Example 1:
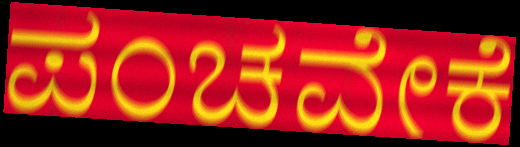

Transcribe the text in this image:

ಪಂಚವೇಕೆ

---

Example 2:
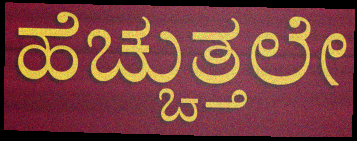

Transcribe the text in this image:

ಹೆಚ್ಚುತ್ತಲೇ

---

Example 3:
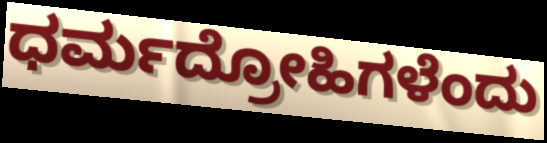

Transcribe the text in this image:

ಧರ್ಮದ್ರೋಹಿಗಳೆಂದು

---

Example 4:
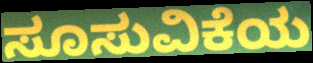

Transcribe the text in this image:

ಸೂಸುವಿಕೆಯ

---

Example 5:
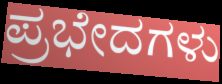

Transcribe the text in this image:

ಪ್ರಭೇದಗಳು